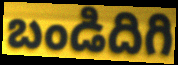
బండిదిగి